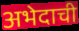
अभेदाची